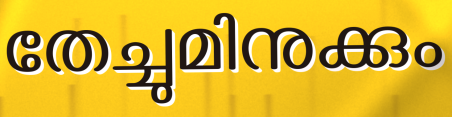
തേച്ചുമിനുക്കും